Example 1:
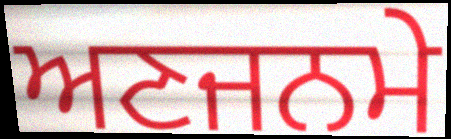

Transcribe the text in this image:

ਅਣਜਨਮੇ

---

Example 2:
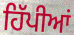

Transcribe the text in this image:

ਹਿੱਪੀਆਂ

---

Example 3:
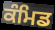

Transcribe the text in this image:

ਕੰਮਿਡ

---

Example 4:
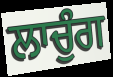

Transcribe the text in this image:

ਲਾਚੁੰਗ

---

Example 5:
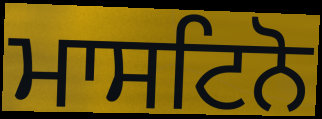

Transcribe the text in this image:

ਮਾਸਟਿਨੋ